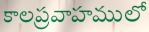
కాలప్రవాహములో